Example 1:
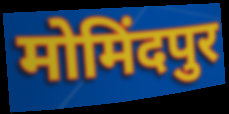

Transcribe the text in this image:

मोमिंदपुर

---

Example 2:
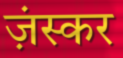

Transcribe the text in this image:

ज़ंस्कर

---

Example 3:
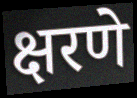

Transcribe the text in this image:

क्षरणे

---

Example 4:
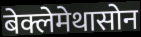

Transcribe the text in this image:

बेक्लेमेथासोन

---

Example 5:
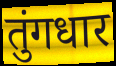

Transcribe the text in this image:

तुंगधार